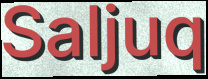
Saljuq